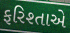
ફરિશ્તાએ